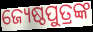
ଜ୍ୟେଷ୍ଠପୁତ୍ରଙ୍କ